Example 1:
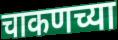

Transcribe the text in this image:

चाकणच्या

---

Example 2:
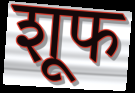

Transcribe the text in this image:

शूफ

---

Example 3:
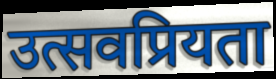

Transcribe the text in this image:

उत्सवप्रियता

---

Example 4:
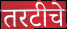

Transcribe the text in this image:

तरटीचे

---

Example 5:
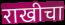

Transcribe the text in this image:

राखीचा